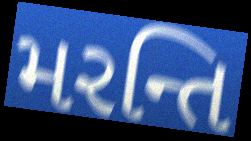
મરન્તિ